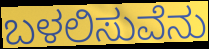
ಬಳಲಿಸುವೆನು